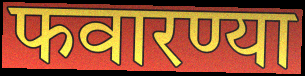
फवारण्या